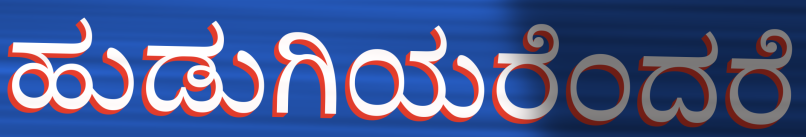
ಹುಡುಗಿಯರೆಂದರೆ